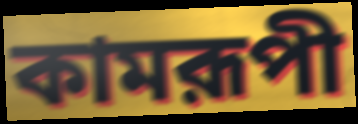
কামরূপী